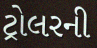
ટ્રોલરની